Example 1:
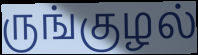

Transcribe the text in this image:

ருங்குழல்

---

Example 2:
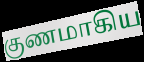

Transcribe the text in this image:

குணமாகிய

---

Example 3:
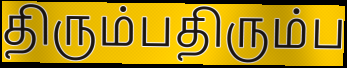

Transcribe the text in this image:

திரும்பதிரும்ப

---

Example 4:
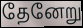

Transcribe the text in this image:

தேனேறு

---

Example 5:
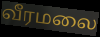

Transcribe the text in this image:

வீரமலை